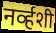
नर्व्हशी